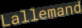
Lallemand